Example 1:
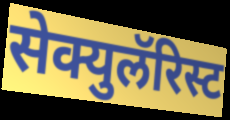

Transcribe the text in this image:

सेक्युलॅरिस्ट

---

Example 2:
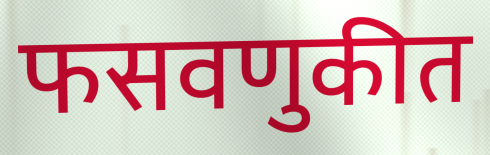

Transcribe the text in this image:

फसवणुकीत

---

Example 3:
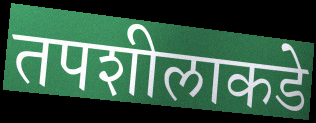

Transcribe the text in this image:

तपशीलाकडे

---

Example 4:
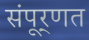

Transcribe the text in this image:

संपूर्णत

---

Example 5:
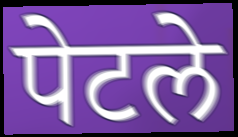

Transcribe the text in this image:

पेटले